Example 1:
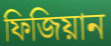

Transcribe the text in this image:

ফিজিয়ান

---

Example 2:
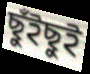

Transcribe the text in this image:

ছুঁইছুই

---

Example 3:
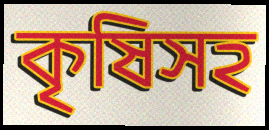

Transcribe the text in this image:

কৃষিসহ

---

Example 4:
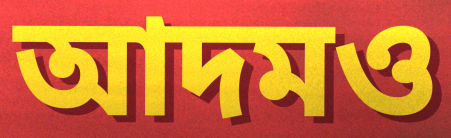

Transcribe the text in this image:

আদমও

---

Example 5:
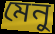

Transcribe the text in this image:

মেনু